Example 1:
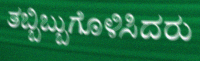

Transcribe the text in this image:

ತಬ್ಬಿಬ್ಬುಗೊಳಿಸಿದರು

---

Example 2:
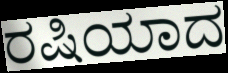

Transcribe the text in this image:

ರಷಿಯಾದ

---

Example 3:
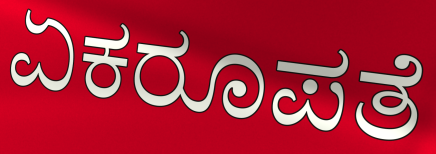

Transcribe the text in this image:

ಏಕರೂಪತೆ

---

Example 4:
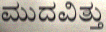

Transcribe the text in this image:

ಮುದವಿತ್ತು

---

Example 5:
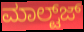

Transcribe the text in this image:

ಮಾಲ್ಟ್‌ಜ್